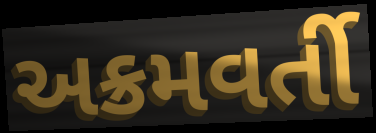
અક્રમવર્તી